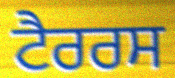
ਟੈਰਰਸ